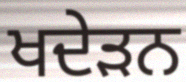
ਖਦੇੜਨ